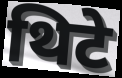
थिटे